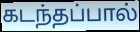
கடந்தப்பால்